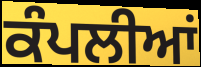
ਕੰਪਲੀਆਂ